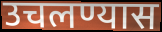
उचलण्यास